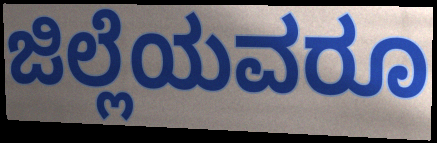
ಜಿಲ್ಲೆಯವರೂ